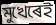
মুখেৰেই